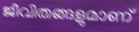
ജീവിതങ്ങളുമാണ്